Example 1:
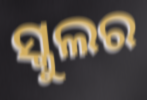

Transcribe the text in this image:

ସ୍କୁଲର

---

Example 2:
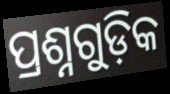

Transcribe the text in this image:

ପ୍ରଶ୍ନଗୁଡ଼ିକ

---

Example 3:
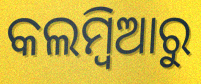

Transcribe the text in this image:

କଲମ୍ବିଆରୁ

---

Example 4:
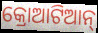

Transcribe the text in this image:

କ୍ରୋଆଟିଆନ୍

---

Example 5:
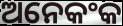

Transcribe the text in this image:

ଅନେକଂକ